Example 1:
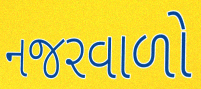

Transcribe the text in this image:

નજરવાળો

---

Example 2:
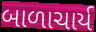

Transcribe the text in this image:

બાળાચાર્ય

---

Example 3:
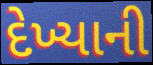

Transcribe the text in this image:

દેખ્યાની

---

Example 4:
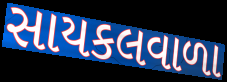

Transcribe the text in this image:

સાયકલવાળા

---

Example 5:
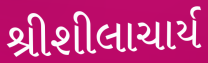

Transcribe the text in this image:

શ્રીશીલાચાર્ય